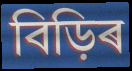
বিড়িৰ